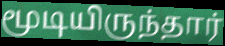
மூடியிருந்தார்